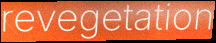
revegetation